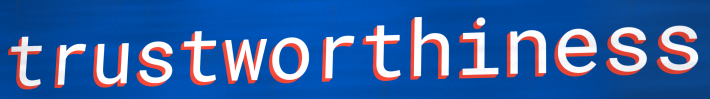
trustworthiness